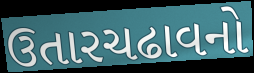
ઉતારચઢાવનો